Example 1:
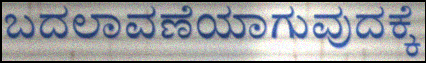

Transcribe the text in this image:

ಬದಲಾವಣೆಯಾಗುವುದಕ್ಕೆ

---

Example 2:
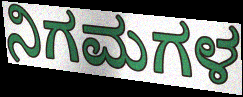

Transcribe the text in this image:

ನಿಗಮಗಳ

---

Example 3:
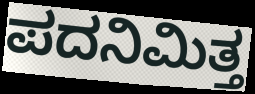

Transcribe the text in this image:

ಪದನಿಮಿತ್ತ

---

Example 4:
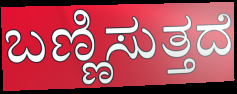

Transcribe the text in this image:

ಬಣ್ಣಿಸುತ್ತದೆ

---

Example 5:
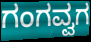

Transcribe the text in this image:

ಗಂಗವ್ವಗ